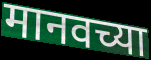
मानवच्या